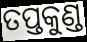
ତପ୍ତକୁଣ୍ଡ